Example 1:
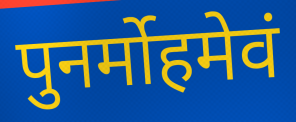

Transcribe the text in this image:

पुनर्मोहमेवं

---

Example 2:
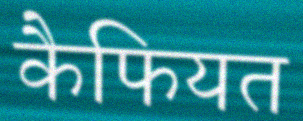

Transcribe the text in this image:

कैफियत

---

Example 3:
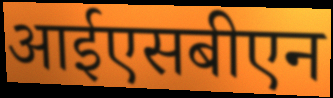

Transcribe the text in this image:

आईएसबीएन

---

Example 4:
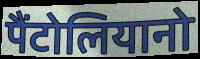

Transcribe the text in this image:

पैंटोलियानो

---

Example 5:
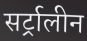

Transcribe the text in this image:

सर्ट्रालीन